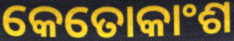
କେତୋକାଂଶ